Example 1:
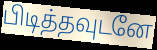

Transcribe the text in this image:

பிடித்தவுடனே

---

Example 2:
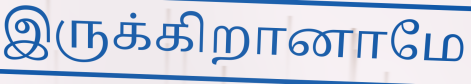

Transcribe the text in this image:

இருக்கிறானாமே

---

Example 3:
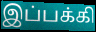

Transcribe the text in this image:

இப்பக்கி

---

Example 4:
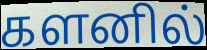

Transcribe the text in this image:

களனில்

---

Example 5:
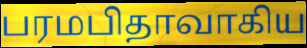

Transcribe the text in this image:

பரமபிதாவாகிய